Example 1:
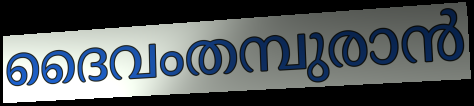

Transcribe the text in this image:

ദൈവംതമ്പുരാൻ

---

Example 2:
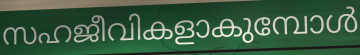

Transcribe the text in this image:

സഹജീവികളാകുമ്പോൾ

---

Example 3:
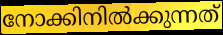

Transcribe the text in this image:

നോക്കിനിൽക്കുന്നത്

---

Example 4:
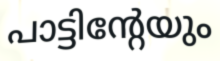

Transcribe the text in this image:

പാട്ടിന്റേയും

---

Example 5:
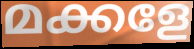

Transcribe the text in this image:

മക്കളേ